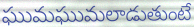
ఘుమఘుమలాడుతుంటే